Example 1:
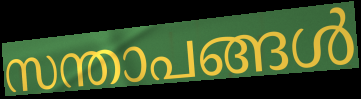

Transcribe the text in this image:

സന്താപങ്ങൾ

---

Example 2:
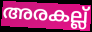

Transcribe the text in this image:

അരകല്ല്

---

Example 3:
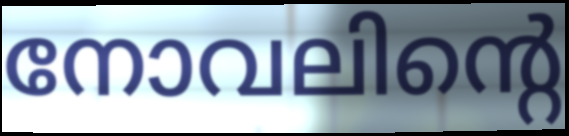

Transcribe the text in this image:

നോവലിന്റെ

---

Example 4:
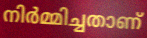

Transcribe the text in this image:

നിർമ്മിച്ചതാണ്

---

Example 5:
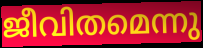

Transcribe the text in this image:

ജീവിതമെന്നു